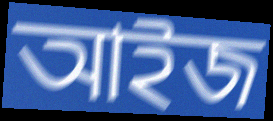
আইজ